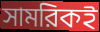
সামরিকই